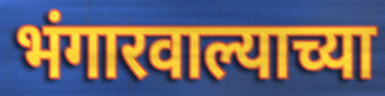
भंगारवाल्याच्या